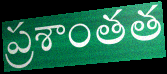
ప్రశాంతత